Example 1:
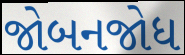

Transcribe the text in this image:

જોબનજોધ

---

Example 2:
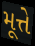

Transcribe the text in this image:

મૂત્તે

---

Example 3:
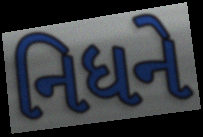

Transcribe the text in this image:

નિધને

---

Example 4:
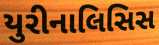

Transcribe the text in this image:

યુરીનાલિસિસ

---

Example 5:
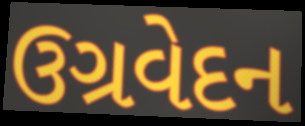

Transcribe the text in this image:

ઉગ્રવેદન